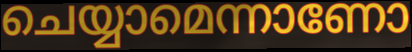
ചെയ്യാമെന്നാണോ